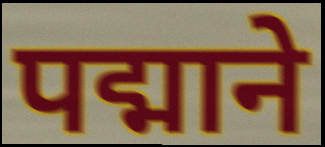
पद्माने